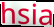
hsia